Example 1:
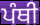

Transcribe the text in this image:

ਪੰਥੀ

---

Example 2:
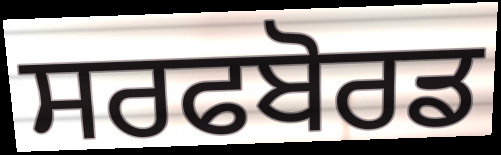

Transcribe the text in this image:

ਸਰਫਬੋਰਡ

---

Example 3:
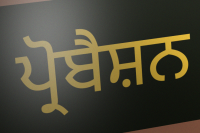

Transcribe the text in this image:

ਪ੍ਰੋਬੈਸ਼ਨ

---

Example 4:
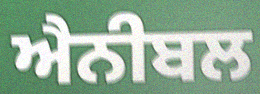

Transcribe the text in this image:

ਐਨੀਬਲ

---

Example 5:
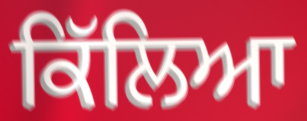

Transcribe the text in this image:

ਕਿੱਲਿਆ